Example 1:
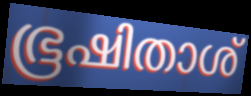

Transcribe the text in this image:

ഭൂഷിതാശ്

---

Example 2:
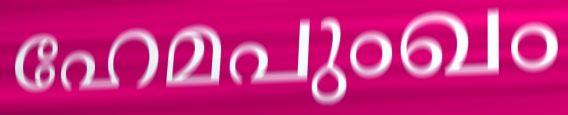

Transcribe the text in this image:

ഹേമപുംഖം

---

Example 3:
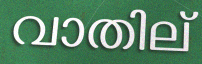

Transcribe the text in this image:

വാതില്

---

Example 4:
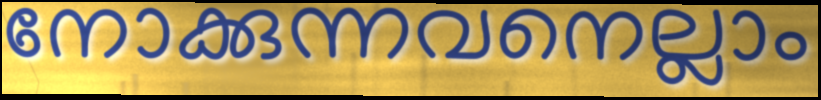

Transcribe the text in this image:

നോക്കുന്നവനെല്ലാം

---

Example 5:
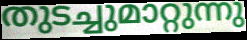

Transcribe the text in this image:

തുടച്ചുമാറ്റുന്നു